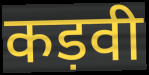
कड़वी